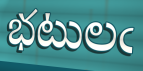
భటులఁ